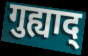
गुह्याद्